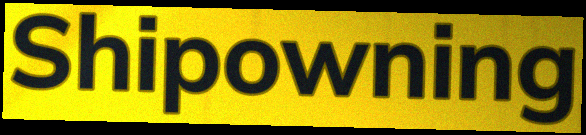
Shipowning